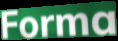
Forma